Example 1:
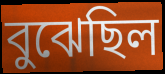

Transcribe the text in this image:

বুঝেছিল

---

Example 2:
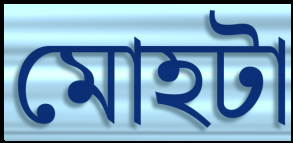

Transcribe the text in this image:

মোহটা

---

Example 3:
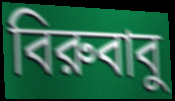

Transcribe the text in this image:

বিরুবাবু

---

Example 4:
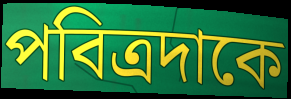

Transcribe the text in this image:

পবিত্রদাকে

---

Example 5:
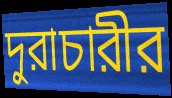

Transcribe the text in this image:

দুরাচারীর